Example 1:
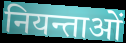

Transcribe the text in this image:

नियन्ताओं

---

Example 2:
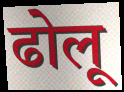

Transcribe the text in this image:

ढोलू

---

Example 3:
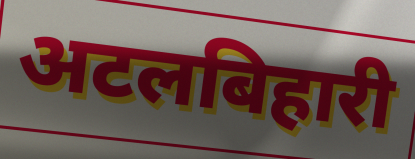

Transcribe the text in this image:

अटलबिहारी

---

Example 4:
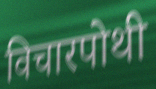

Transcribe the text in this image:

विचारपोथी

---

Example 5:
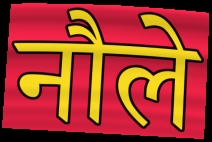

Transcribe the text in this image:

नौले